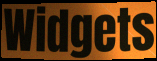
Widgets